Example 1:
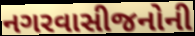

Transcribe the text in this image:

નગરવાસીજનોની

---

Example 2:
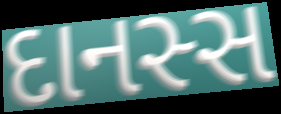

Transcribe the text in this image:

દાનસ્સ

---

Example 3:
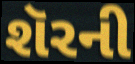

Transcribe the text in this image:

શૅરની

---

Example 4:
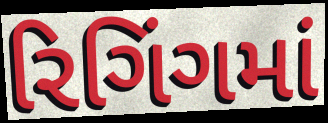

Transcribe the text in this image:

રિગિંગમાં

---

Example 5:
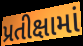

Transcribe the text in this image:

પ્રતીક્ષામાં